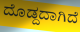
ದೊಡ್ದದಾಗಿದೆ